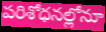
పరిశోధనల్లోనూ